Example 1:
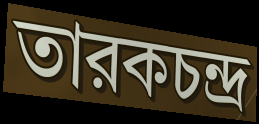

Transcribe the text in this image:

তারকচন্দ্র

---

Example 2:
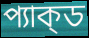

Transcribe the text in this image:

প্যাক্‌ড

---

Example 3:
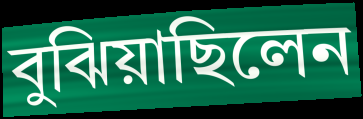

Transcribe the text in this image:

বুঝিয়াছিলেন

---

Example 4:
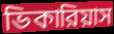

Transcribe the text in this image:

ভিকারিয়াস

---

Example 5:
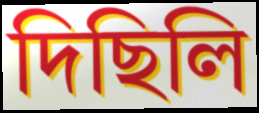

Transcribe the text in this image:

দিছিলি